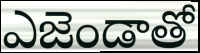
ఎజెండాతో